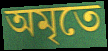
অমৃতে